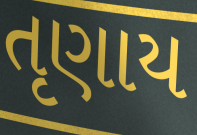
તૃણાય